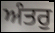
ਅੰਤਰੁ